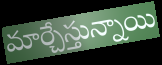
మార్చేస్తున్నాయి